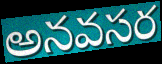
అనవసర